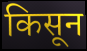
किसून